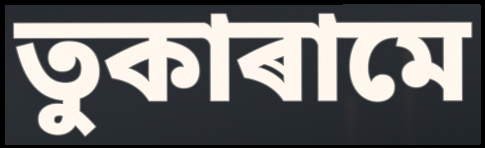
তুকাৰামে